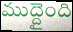
ముద్దైంది